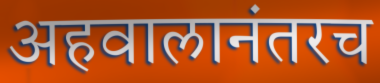
अहवालानंतरच